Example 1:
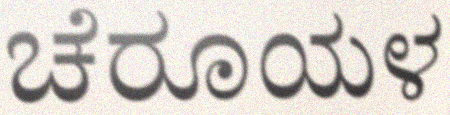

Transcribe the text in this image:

ಚೆರೂಯಳ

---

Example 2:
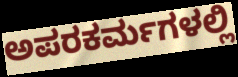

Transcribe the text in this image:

ಅಪರಕರ್ಮಗಳಲ್ಲಿ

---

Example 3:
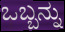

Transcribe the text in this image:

ಒಬ್ಬನ್ನು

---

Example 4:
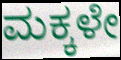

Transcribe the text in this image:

ಮಕ್ಕಳೇ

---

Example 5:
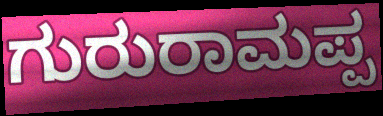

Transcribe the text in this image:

ಗುರುರಾಮಪ್ಪ